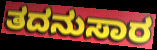
ತದನುಸಾರ